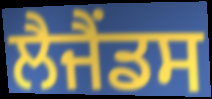
ਲੈਜੈਂਡਸ